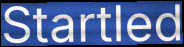
Startled